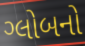
ગ્લોબનો